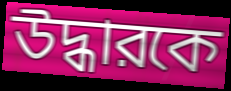
উদ্ধারকে